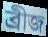
ব্ৰীজ